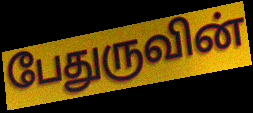
பேதுருவின்